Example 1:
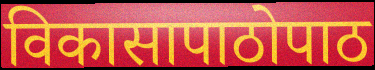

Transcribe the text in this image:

विकासापाठोपाठ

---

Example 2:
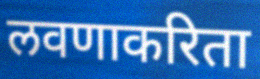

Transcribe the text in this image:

लवणाकरिता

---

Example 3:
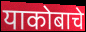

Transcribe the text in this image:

याकोबाचे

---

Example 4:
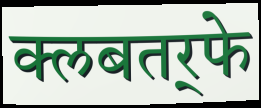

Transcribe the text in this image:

क्लबतर्फे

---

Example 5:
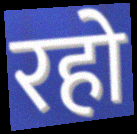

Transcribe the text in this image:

रहो